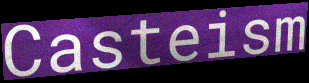
Casteism